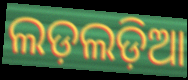
ଲଡ଼ଲଡ଼ିଆ